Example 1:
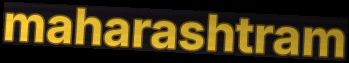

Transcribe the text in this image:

maharashtram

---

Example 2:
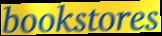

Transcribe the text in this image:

bookstores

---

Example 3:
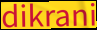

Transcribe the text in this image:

dikrani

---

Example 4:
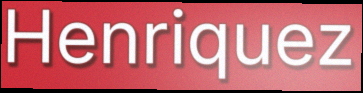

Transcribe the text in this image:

Henriquez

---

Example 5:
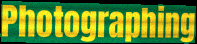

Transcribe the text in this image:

Photographing